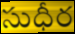
సుధీర